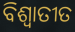
ବିଶ୍ଵାତୀତ